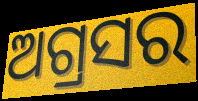
ଅଗ୍ରସର